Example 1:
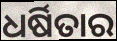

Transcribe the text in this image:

ଧର୍ଷିତାର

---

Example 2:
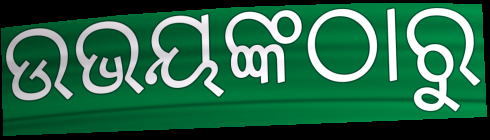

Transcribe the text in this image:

ଉଭୟଙ୍କଠାରୁ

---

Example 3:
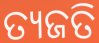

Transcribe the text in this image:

ତ୍ୟଜତି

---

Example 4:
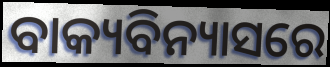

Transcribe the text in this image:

ବାକ୍ୟବିନ୍ୟାସରେ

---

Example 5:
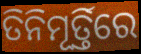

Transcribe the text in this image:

ତିନିମୂର୍ତ୍ତିରେ